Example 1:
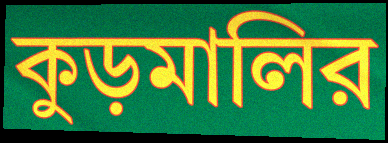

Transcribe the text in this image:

কুড়মালির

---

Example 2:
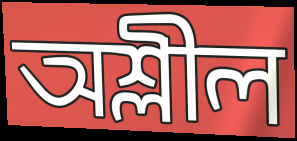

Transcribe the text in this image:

অশ্লীল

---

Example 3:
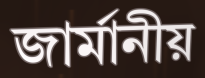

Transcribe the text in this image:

জার্মানীয়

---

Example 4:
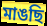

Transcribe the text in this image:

মাঙছি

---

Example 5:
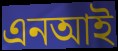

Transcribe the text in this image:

এনআই